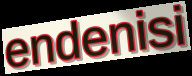
endenisi